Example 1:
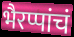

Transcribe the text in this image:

भैरप्पांचं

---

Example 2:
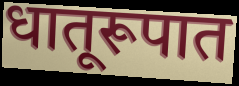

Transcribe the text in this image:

धातूरूपात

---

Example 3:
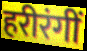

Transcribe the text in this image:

हरीरंगीं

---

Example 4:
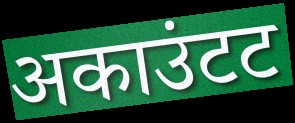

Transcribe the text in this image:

अकाउंटट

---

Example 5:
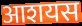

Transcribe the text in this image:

आशयस